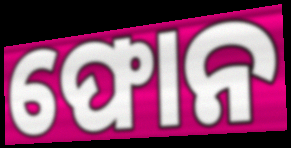
ଫୋନ